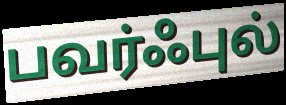
பவர்ஃபுல்